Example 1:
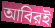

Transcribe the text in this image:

আবিরই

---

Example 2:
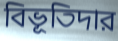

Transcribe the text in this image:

বিভূতিদার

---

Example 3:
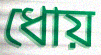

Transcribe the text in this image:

ধোয়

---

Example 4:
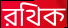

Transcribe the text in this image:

রথিক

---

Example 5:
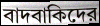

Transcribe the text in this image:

বাদবাকিদের